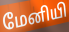
மேனியி